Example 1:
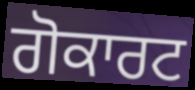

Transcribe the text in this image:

ਗੋਕਾਰਟ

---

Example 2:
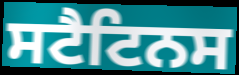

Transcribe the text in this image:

ਸਟੈਟਿਨਸ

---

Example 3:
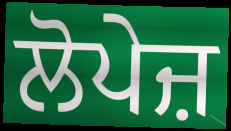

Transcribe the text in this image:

ਲੋਪੇਜ਼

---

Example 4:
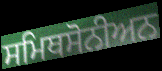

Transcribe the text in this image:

ਸਮਿਥਸੋਨੀਅਨ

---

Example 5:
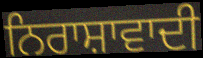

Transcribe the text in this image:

ਨਿਰਾਸ਼ਾਵਾਦੀ